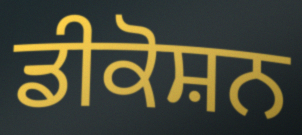
ਡੀਕੋਸ਼ਨ